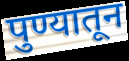
पुण्यातून